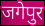
जगेपुर